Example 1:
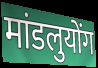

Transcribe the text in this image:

मांडलुयोंग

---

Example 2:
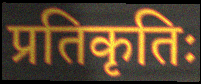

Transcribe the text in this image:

प्रतिकृतिः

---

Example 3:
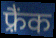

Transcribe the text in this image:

फ़्रैंक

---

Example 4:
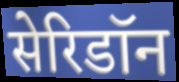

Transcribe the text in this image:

सेरिडॉन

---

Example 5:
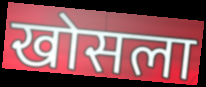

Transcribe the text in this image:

खोसला